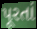
પૂરતાં